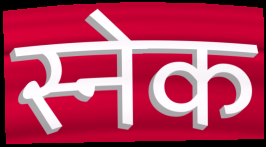
स्‍नेक